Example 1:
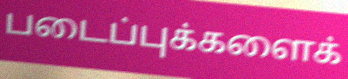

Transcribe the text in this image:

படைப்புக்களைக்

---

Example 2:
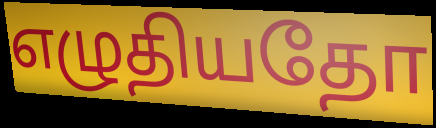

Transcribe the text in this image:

எழுதியதோ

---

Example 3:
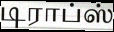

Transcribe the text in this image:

டிராப்ஸ்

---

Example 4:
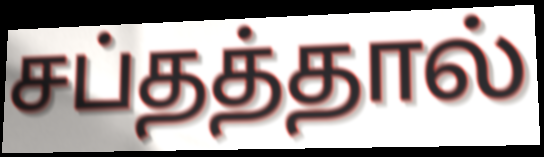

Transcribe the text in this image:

சப்தத்தால்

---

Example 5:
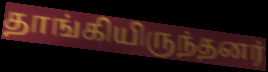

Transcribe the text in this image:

தாங்கியிருந்தனர்